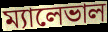
ম্যালেভাল